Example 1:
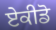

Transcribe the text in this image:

ਏਕੀਡੋ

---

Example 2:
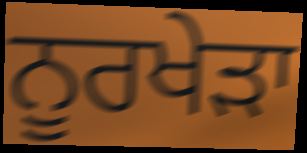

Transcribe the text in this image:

ਨੂਰਖੇੜਾ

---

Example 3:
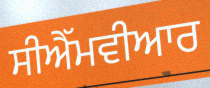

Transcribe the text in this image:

ਸੀਐੱਮਵੀਆਰ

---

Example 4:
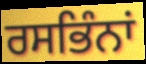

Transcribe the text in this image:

ਰਸਭਿੰਨਾਂ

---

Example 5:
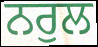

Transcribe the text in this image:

ਨਰੁਲ